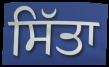
ਸਿੱਤਾ